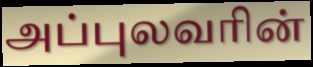
அப்புலவரின்